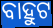
ବାହୁଟ